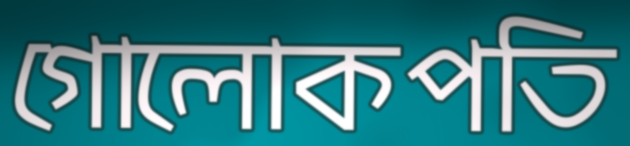
গোলোকপতি